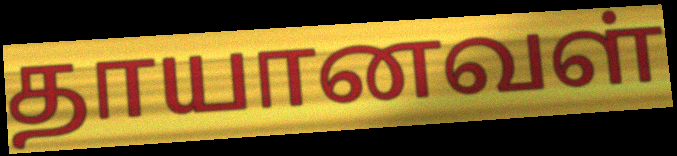
தாயானவள்